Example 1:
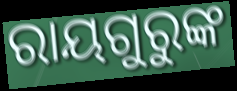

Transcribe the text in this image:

ରାୟଗୁରୁଙ୍କ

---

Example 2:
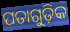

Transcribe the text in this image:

ପତାଗୁଡ଼ିକ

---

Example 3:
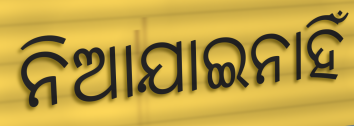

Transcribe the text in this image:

ନିଆଯାଇନାହିଁ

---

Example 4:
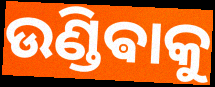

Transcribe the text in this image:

ଉଣ୍ଡିଵାକୁ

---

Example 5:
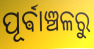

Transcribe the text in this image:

ପୂର୍ଵାଞ୍ଚଳରୁ